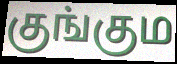
குங்கும